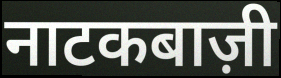
नाटकबाज़ी